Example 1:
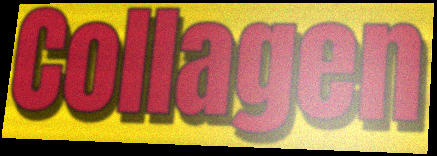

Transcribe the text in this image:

Collagen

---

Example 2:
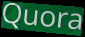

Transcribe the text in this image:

Quora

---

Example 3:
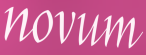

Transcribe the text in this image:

novum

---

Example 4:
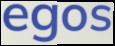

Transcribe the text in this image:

egos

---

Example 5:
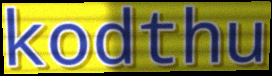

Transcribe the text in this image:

kodthu